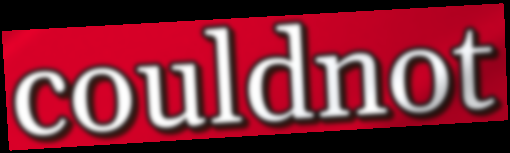
couldnot